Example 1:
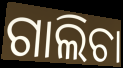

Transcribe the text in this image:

ଗାଲିଚା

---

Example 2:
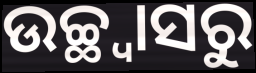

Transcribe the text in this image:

ଉଚ୍ଛ୍ୱାସରୁ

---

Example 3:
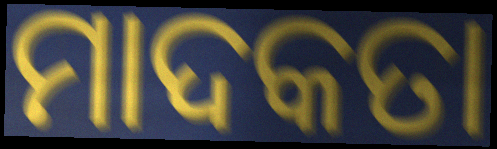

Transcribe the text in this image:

ମାଦକତା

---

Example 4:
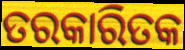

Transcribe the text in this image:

ତରକାରିତକ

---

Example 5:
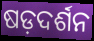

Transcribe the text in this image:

ଷଡ଼ଦର୍ଶନ